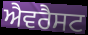
ਐਵਰੈਸਟ